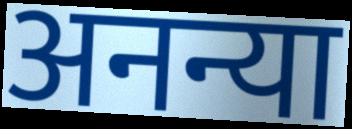
अनन्या